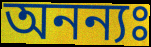
অনন্যঃ